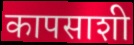
कापसाशी